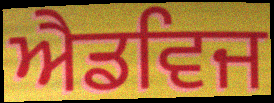
ਐਡਵਿਜ